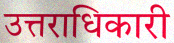
उत्तराधिकारी